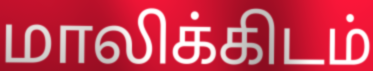
மாலிக்கிடம்